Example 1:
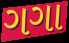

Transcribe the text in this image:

ગગા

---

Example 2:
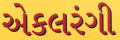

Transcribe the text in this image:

એકલરંગી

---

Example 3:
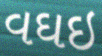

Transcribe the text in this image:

વઘઇ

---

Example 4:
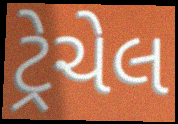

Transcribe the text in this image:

ટ્રેચેલ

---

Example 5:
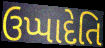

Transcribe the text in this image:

ઉપ્પાદેતિ